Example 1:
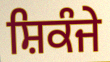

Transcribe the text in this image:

ਸ਼ਿਕੰਜੇ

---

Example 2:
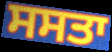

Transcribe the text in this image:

ਸਸਤਾ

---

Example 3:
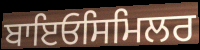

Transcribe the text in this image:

ਬਾਇਓਸਿਮਿਲਰ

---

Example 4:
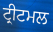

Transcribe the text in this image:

ਟ੍ਰੀਟਮਲ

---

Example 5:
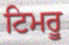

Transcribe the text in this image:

ਟਿਮਰੂ